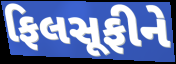
ફિલસૂફીને